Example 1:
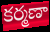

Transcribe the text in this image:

కర్మణా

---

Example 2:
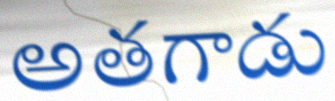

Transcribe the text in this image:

అతగాడు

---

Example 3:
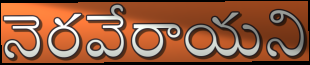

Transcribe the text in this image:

నెరవేరాయని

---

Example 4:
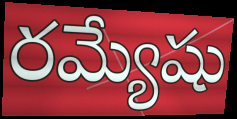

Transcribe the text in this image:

రమ్యేషు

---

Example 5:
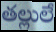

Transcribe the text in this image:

తల్లులే